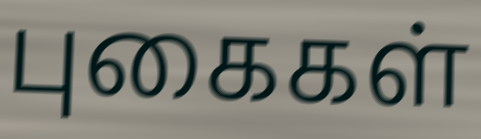
புகைகள்